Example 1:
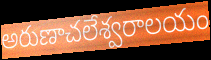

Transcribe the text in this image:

అరుణాచలేశ్వరాలయం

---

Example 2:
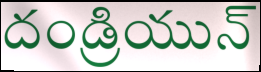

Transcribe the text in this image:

దండ్రియున్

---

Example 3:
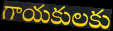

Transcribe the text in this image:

గాయకులకు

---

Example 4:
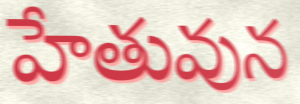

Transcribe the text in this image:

హేతువున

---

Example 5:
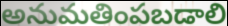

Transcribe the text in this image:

అనుమతింపబడాలి